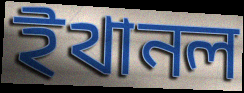
ইথানল